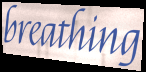
breathing